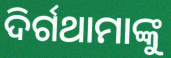
ଦିର୍ଗଥାମାଙ୍କୁ